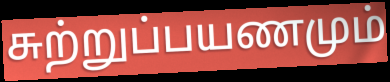
சுற்றுப்பயணமும்